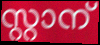
സ്റ്റാന്